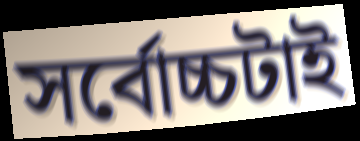
সর্বোচ্চটাই